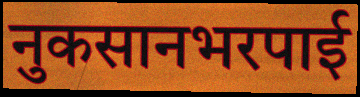
नुकसानभरपाई